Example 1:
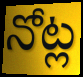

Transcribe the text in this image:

నోట్ల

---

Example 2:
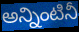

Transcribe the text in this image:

అన్నింటినీ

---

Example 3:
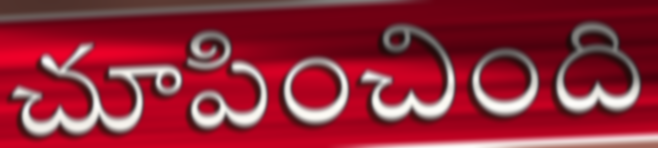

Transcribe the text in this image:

చూపించింది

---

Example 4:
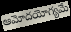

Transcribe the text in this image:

ఆమోదయోగ్యమే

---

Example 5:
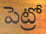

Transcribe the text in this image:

పెట్రో